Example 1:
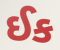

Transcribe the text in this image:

ઈક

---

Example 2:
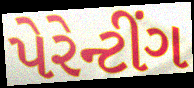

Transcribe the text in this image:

પેરેન્ટીંગ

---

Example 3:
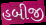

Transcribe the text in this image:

હબીજી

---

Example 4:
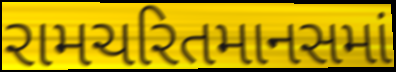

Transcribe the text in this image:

રામચરિતમાનસમાં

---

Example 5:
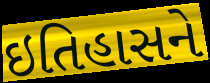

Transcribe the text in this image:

ઇતિહાસને